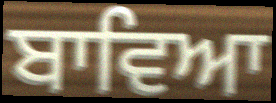
ਬਾਵਿਆ